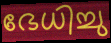
ഭേധിച്ചു